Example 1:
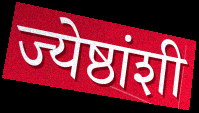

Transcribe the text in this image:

ज्येष्ठांशी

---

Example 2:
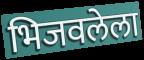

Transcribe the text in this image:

भिजवलेला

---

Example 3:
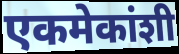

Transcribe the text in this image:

एकमेकांशी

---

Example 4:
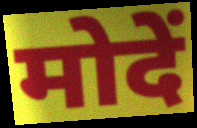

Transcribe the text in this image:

मोदें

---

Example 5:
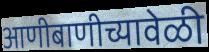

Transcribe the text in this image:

आणीबाणीच्यावेळी